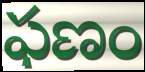
ఫణం